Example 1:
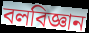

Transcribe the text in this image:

বলবিজ্ঞান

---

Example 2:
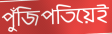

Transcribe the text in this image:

পুঁজিপতিয়েই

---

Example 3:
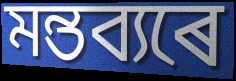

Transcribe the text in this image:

মন্তব্যৰে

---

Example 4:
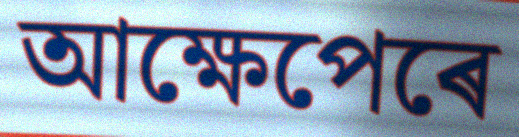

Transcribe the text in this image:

আক্ষেপেৰে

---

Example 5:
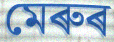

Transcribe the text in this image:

মেৰুৰ